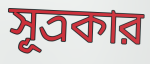
সূত্রকার